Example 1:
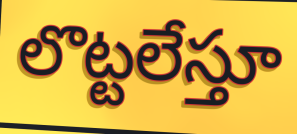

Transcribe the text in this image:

లొట్టలేస్తూ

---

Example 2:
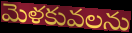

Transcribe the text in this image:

మెళకువలను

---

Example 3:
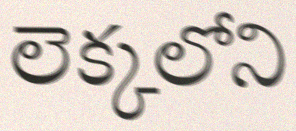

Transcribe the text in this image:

లెక్కలోని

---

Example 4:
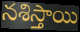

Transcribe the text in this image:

నశిస్తాయి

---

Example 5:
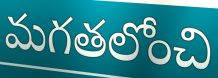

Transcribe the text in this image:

మగతలోంచి